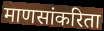
माणसांकरिता